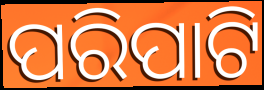
ପରିପାଟି